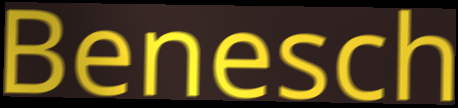
Benesch